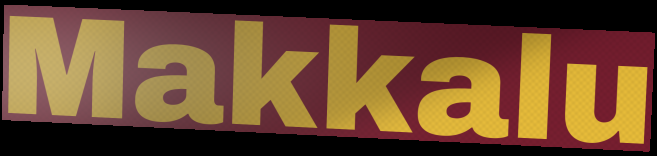
Makkalu